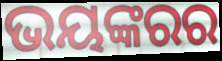
ଭୟଙ୍କରର